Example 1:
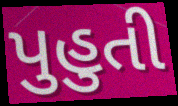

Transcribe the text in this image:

પુહુતી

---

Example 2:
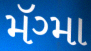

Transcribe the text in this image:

મૅગ્મા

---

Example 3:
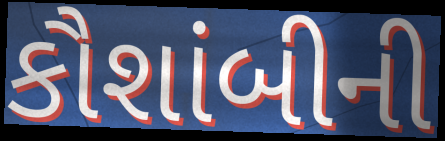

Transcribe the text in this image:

કૌશાંબીની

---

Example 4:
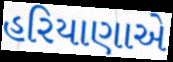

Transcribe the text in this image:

હરિયાણાએ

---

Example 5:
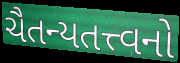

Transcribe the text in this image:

ચૈતન્યતત્ત્વનો